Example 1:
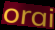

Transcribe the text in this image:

orai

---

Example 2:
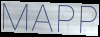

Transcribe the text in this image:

MAPP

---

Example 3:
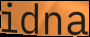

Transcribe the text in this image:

idna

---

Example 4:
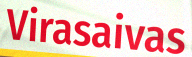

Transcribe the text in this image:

Virasaivas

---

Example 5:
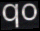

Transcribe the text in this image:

qo